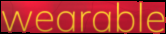
wearable